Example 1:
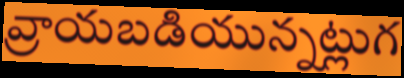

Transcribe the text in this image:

వ్రాయబడియున్నట్లుగ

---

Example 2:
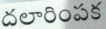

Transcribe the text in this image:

దలారింపక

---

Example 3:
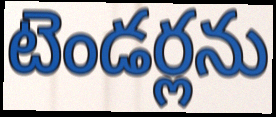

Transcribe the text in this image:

టెండర్లను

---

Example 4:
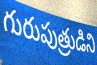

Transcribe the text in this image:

గురుపుత్రుడిని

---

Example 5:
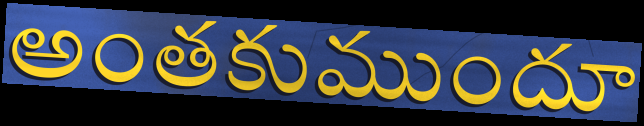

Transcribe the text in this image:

అంతకుముందూ